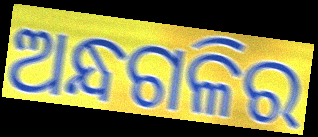
ଅନ୍ଧଗଳିର